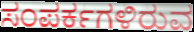
ಸಂಪರ್ಕಗಳಿರುವ